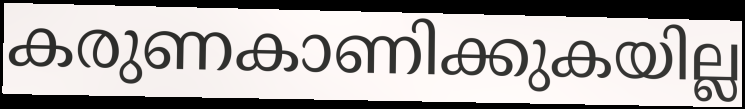
കരുണകാണിക്കുകയില്ല